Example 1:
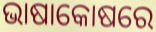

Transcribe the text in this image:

ଭାଷାକୋଷରେ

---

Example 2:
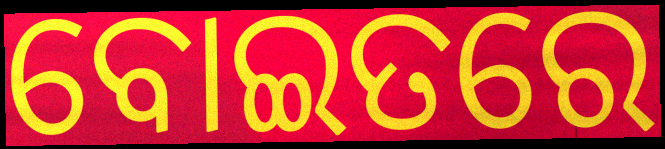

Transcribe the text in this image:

ବୋଇତରେ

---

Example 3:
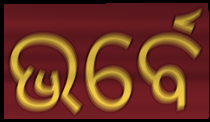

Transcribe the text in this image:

ଭର୍ବେ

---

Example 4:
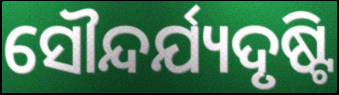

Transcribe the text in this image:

ସୌନ୍ଦର୍ଯ୍ୟଦୃଷ୍ଟି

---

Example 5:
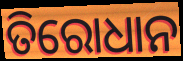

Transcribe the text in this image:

ତିରୋଧାନ